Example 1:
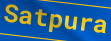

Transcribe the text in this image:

Satpura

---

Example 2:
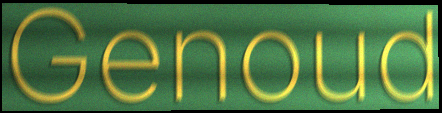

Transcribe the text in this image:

Genoud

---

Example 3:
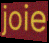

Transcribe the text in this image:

joie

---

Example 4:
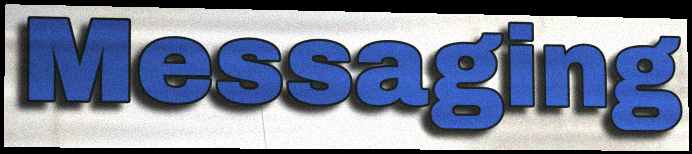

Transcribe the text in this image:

Messaging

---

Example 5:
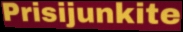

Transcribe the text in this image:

Prisijunkite